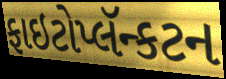
ફાઇટોપ્લૅન્કટન